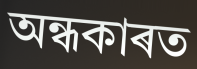
অন্ধকাৰত